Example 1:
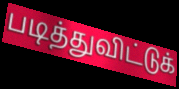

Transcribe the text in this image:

படித்துவிட்டுக்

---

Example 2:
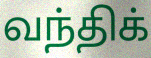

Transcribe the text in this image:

வந்திக்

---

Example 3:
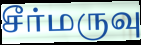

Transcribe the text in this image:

சீர்மருவு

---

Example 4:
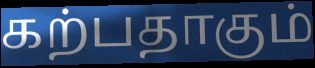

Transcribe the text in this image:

கற்பதாகும்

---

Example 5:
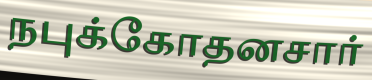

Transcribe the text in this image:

நபுக்கோதனசார்